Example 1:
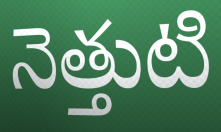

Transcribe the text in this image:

నెత్తుటి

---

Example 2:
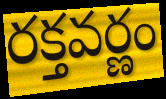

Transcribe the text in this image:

రక్తవర్ణం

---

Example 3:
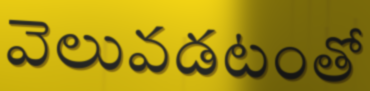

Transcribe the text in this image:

వెలువడటంతో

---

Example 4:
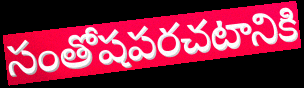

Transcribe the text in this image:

సంతోషపరచటానికి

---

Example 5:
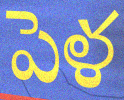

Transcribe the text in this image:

పెళ